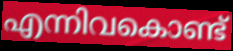
എന്നിവകൊണ്ട്